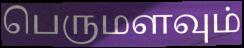
பெருமளவும்